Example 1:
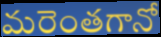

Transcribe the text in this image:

మరెంతగానో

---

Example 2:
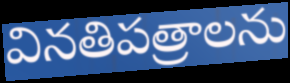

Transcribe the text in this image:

వినతిపత్రాలను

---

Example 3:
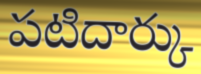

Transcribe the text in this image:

పటిదార్కు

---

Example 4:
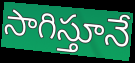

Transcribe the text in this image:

సాగిస్తూనే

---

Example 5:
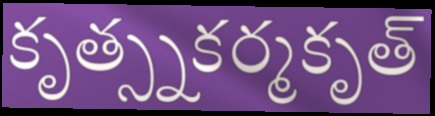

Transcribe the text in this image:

కృత్స్నకర్మకృత్